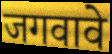
जगवावे